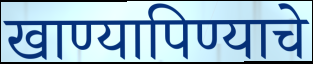
खाण्यापिण्याचे